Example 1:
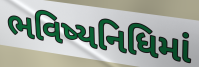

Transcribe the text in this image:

ભવિષ્યનિધિમાં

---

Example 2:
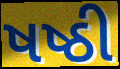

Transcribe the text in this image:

ષષ્ઠી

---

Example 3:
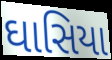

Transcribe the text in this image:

ઘાસિયા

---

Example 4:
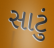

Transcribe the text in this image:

સાટું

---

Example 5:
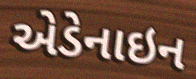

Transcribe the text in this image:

એડેનાઇન